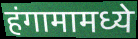
हंगामामध्ये